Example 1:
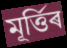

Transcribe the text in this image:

মূৰ্ত্তিৰ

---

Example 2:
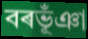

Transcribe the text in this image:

বৰভূঁঞা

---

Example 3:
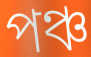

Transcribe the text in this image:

পঞ্চ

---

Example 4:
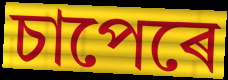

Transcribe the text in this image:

চাপেৰে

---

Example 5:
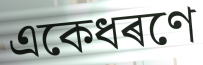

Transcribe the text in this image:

একেধৰণে